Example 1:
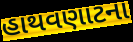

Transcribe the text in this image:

હાથવણાટના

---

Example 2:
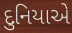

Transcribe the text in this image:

દુનિયાએ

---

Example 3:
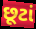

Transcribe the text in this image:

છૂટાં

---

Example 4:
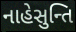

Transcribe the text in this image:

નાહેસુન્તિ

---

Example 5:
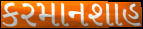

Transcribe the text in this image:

કરમાનશાહ